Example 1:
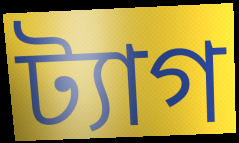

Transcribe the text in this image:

ট্যাগ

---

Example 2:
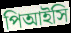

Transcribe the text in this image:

পিআইসি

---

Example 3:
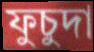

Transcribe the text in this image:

ফুচুদা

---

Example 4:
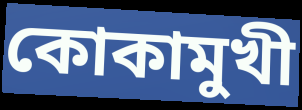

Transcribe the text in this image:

কোকামুখী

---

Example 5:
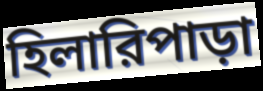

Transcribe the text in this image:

হিলারিপাড়া